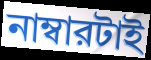
নাম্বারটাই